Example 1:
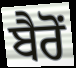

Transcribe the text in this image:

ਬੈਰੋਂ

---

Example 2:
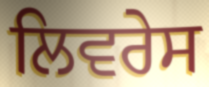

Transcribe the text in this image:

ਲਿਵਰੇਸ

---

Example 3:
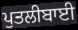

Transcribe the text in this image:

ਪੁਤਲੀਬਾਈ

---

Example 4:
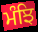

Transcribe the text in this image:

ਮੰਝਿ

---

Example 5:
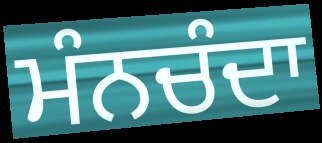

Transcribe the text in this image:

ਮੰਨਚੰਦਾ